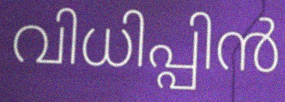
വിധിപ്പിൻ